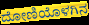
ದೋಣಿಯೊಳಗಿನ